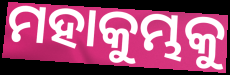
ମହାକୁମ୍ଭକୁ